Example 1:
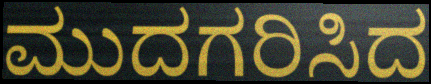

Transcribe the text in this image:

ಮುದಗರಿಸಿದ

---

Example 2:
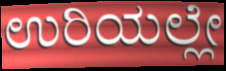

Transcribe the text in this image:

ಉರಿಯಲ್ಲೇ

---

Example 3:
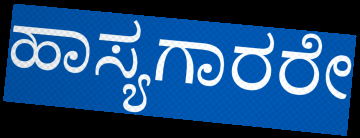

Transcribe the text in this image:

ಹಾಸ್ಯಗಾರರೇ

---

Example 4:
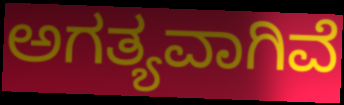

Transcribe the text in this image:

ಅಗತ್ಯವಾಗಿವೆ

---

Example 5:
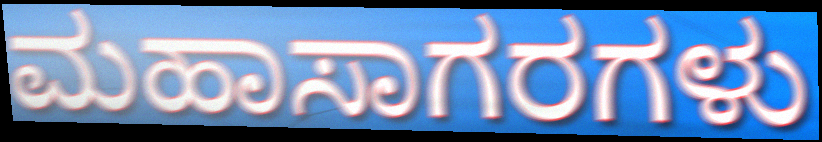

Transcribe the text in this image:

ಮಹಾಸಾಗರಗಳು